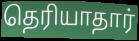
தெரியாதார்